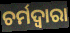
ଚର୍ମଦ୍ଵାରା